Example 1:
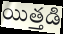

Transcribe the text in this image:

యిత్తడి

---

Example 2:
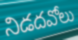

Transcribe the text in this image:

నిడదవోలు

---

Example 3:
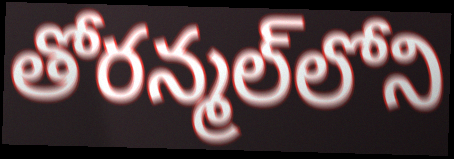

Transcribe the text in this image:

తోరన్మల్‌లోని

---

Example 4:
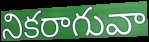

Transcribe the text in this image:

నికరాగువా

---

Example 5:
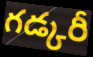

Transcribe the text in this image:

గడ్కరీ